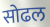
सोढल